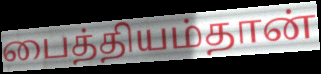
பைத்தியம்தான்